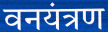
वनयंत्रण